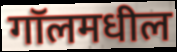
गॉलमधील